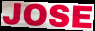
JOSE